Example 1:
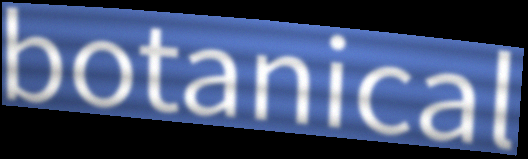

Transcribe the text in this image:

botanical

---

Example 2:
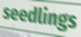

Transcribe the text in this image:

seedlings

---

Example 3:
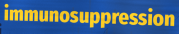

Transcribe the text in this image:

immunosuppression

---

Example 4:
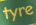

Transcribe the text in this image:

tyre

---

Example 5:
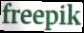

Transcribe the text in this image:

freepik